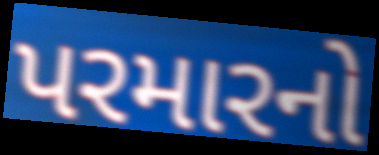
પરમારનો